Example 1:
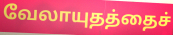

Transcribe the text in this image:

வேலாயுதத்தைச்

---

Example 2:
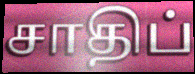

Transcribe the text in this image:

சாதிப்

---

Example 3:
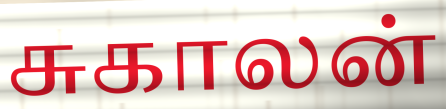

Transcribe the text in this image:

சுகாலன்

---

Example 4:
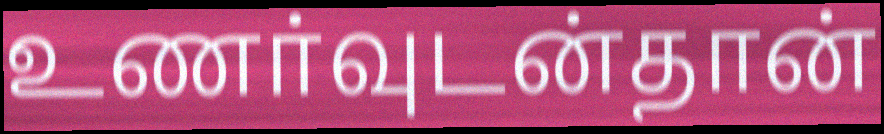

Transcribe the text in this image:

உணர்வுடன்தான்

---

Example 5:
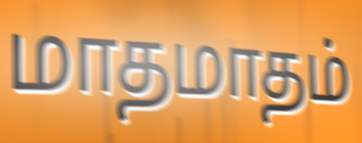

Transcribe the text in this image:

மாதமாதம்